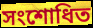
সংশোধিত